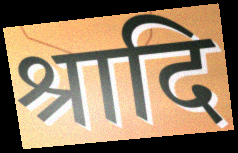
श्रादि